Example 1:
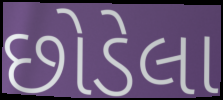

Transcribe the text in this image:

છોડેલા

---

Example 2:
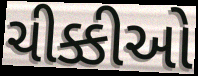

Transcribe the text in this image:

ચીક્કીઓ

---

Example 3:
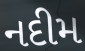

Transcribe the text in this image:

નદીમ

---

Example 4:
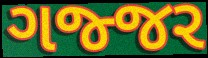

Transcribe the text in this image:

ગજ્જર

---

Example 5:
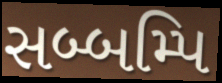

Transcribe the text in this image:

સબ્બમ્પિ